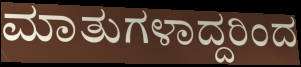
ಮಾತುಗಳಾದ್ದರಿಂದ